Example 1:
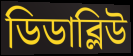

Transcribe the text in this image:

ডিডাব্লিউ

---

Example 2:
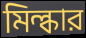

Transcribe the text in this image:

মিল্কার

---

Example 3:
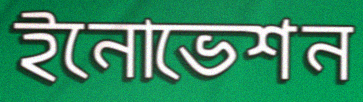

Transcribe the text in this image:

ইনোভেশন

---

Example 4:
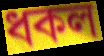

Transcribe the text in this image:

ধকল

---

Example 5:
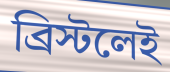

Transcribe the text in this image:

ব্রিস্টলেই